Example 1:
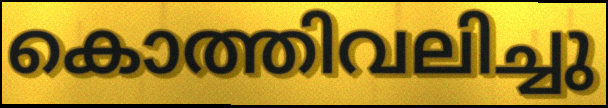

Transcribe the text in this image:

കൊത്തിവലിച്ചു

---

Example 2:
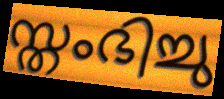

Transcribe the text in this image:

സ്തംഭിച്ചു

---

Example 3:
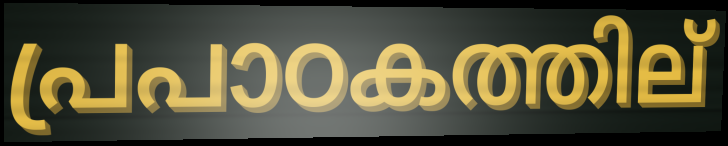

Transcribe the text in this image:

പ്രപാഠകത്തില്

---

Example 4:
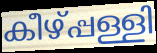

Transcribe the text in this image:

കീഴ്പ്പള്ളി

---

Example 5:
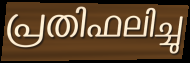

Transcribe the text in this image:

പ്രതിഫലിച്ചു